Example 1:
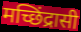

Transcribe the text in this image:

मच्छिंद्रासी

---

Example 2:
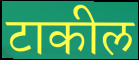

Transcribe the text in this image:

टाकील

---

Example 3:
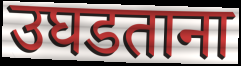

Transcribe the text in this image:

उघडताना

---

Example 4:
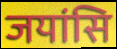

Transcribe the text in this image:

जयांसि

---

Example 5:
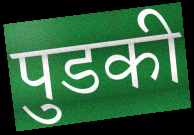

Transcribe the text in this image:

पुडकी